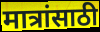
मात्रांसाठी